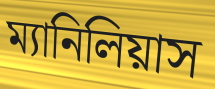
ম্যানিলিয়াস